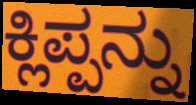
ಕ್ಲಿಪ್ಪನ್ನು